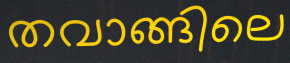
തവാങ്ങിലെ